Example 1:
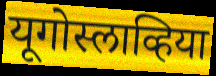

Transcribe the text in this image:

यूगोस्लाव्हिया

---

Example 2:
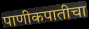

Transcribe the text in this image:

पाणीकपातीचा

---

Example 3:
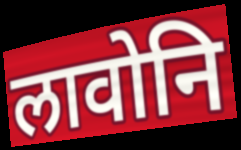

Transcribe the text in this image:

लावोनि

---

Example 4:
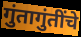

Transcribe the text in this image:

गुंतागुंतींचे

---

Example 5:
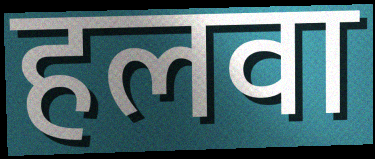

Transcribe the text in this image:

हलवा